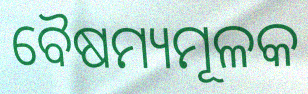
ବୈଷମ୍ୟମୂଳକ